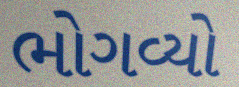
ભોગવ્યો